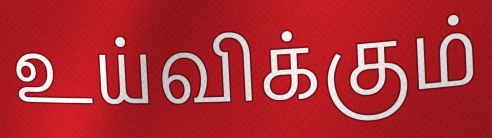
உய்விக்கும்